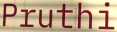
Pruthi